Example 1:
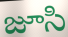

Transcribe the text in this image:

జూసి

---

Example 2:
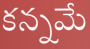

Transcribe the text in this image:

కన్నమే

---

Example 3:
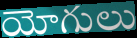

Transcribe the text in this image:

యోగులు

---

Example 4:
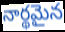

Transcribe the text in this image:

నార్థమైన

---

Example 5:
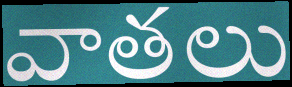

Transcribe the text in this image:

వాతలు